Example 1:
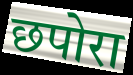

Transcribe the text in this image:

छपोरा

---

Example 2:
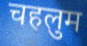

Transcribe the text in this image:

चहलुम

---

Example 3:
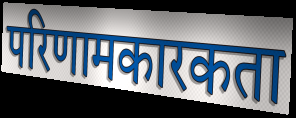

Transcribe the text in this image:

परिणामकारकता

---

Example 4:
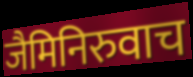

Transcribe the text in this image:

जैमिनिरुवाच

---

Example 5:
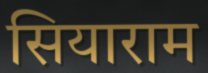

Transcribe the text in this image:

सियाराम